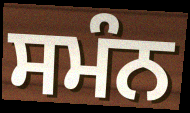
ਸਮੰਨ